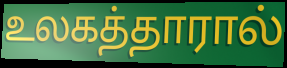
உலகத்தாரால்